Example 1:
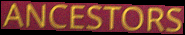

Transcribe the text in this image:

ANCESTORS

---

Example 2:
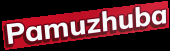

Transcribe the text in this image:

Pamuzhuba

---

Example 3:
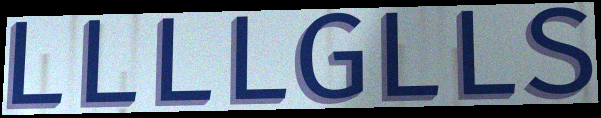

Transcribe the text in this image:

LLLLGLLS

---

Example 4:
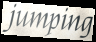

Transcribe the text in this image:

jumping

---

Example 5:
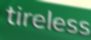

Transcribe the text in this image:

tireless